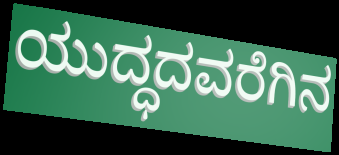
ಯುದ್ಧದವರೆಗಿನ